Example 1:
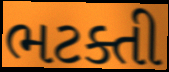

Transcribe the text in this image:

ભટક્તી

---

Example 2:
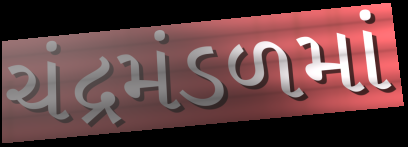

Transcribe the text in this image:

ચંદ્રમંડળમાં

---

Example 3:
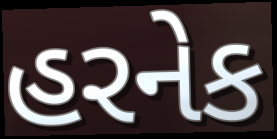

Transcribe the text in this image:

હરનેક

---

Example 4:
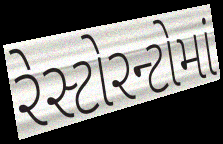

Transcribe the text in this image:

રેસ્ટોરન્ટોમાં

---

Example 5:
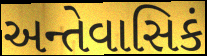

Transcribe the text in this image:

અન્તેવાસિકં